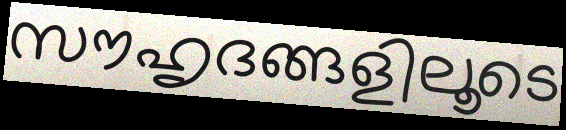
സൗഹൃദങ്ങളിലൂടെ